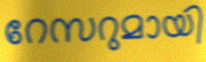
റേസറുമായി